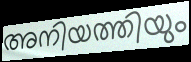
അനിയത്തിയും